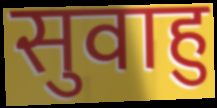
सुवाहु